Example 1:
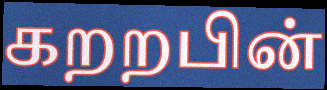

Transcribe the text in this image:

கறறபின்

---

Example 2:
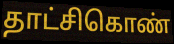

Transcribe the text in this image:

தாட்சிகொண்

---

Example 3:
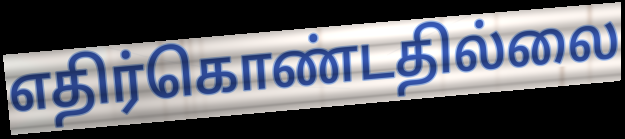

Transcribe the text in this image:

எதிர்கொண்டதில்லை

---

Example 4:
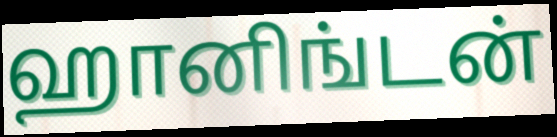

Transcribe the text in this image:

ஹானிங்டன்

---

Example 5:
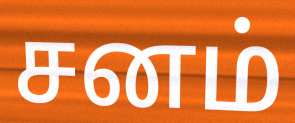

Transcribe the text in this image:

சனம்